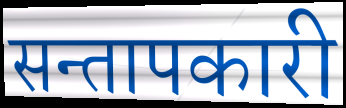
सन्तापकारी